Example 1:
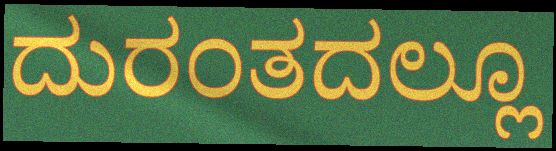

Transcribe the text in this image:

ದುರಂತದಲ್ಲೂ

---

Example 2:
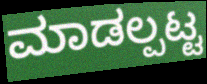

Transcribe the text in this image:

ಮಾಡಲ್ಪಟ್ಟ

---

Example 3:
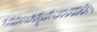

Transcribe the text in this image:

ಸಮಾಜಕ್ಕನುಗುಣವಾಗಿ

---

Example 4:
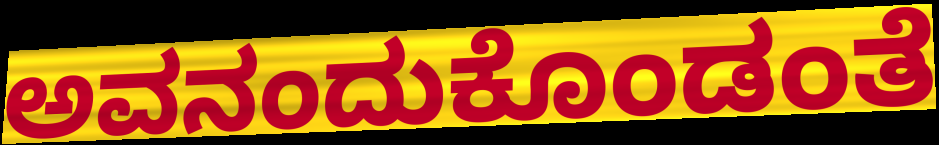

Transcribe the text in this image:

ಅವನಂದುಕೊಂಡಂತೆ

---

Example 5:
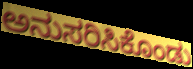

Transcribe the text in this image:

ಅನುಸರಿಸಿಕೊಂಡು